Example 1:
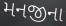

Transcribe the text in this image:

મનજીના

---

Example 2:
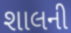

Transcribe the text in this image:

શાલની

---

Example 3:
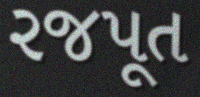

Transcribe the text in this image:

રજપૂત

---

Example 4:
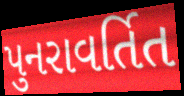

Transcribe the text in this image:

પુનરાવર્તિત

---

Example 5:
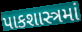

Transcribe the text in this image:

પાકશાસ્ત્રમાં